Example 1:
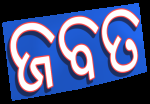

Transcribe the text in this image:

ଜବତ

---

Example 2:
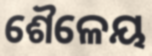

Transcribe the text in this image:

ଶୈଳେୟ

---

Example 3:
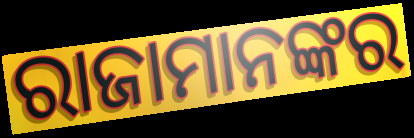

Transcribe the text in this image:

ରାଜାମାନଙ୍କର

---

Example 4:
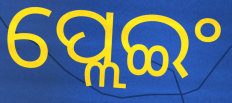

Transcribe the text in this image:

ପ୍ଲେଇଂ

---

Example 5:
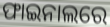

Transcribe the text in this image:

ଫାଇନାଲରେ